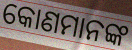
କୋଣମାନଙ୍କ